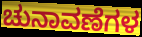
ಚುನಾವಣೆಗಳ